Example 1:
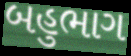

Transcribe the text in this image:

બહુભાગ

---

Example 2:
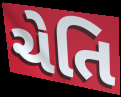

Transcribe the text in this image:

ચેતિ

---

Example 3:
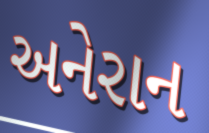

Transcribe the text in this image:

અનેરાન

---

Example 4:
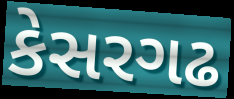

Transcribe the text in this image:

કેસરગઢ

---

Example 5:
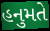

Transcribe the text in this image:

હનુમતે